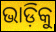
ଭାଡ଼ିକୁ